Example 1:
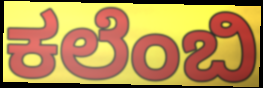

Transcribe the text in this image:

ಕಲೆಂಬಿ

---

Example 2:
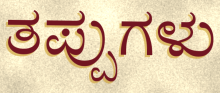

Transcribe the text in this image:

ತಪ್ಪುಗಳು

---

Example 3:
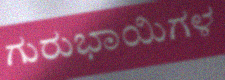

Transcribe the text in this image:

ಗುರುಭಾಯಿಗಳ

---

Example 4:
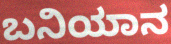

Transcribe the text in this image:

ಬನಿಯಾನ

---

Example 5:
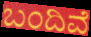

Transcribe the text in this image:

ಬಂದಿವೆ